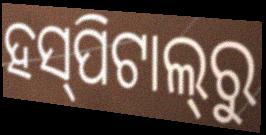
ହସ୍‌ପିଟାଲ୍‌ରୁ